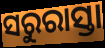
ସରୁରାସ୍ତା